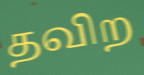
தவிற